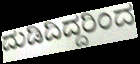
ದುಡಿದಿದ್ದರಿಂದ